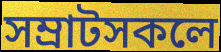
সম্ৰাটসকলে